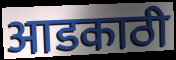
आडकाठी